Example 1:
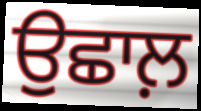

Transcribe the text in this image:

ਉਛਾਲ਼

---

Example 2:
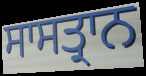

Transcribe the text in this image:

ਸਾਸਤ੍ਰਾਨ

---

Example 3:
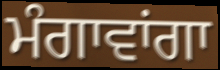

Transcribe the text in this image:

ਮੰਗਾਵਾਂਗਾ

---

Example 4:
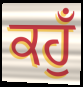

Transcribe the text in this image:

ਕਹੁਁ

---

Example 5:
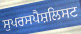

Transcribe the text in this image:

ਸੁਪਰਸਪੈਸ਼ਲਿਸਟ